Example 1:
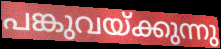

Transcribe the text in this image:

പങ്കുവയ്ക്കുന്നു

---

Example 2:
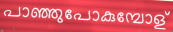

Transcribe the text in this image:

പാഞ്ഞുപോകുമ്പോള്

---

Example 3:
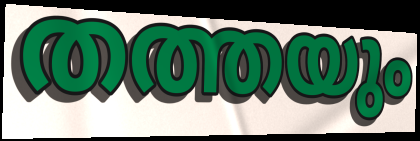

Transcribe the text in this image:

തത്തയും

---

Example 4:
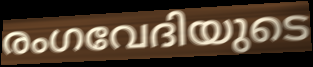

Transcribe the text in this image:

രംഗവേദിയുടെ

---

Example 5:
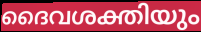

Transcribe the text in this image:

ദൈവശക്തിയും